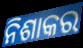
ନିଶାକର